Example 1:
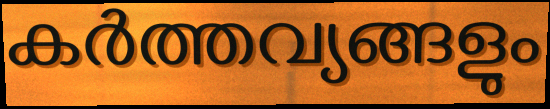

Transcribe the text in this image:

കർത്തവ്യങ്ങളും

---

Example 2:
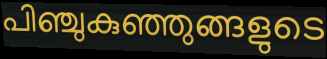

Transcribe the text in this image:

പിഞ്ചുകുഞ്ഞുങ്ങളുടെ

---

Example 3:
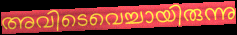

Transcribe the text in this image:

അവിടെവെച്ചായിരുന്നു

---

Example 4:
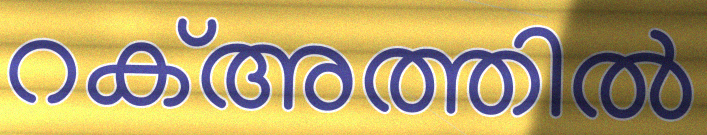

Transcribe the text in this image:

റക്അത്തിൽ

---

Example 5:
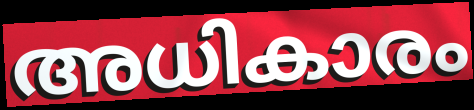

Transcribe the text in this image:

അധികാരം